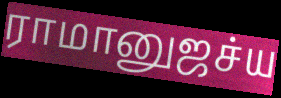
ராமானுஜச்ய